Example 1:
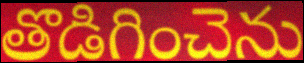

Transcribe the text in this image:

తొడిగించెను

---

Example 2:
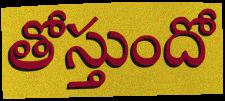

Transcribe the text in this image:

తోస్తుందో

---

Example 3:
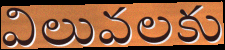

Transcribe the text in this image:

విలువలకు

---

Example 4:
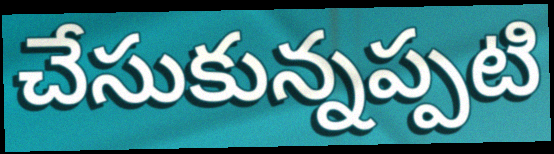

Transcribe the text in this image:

చేసుకున్నప్పటి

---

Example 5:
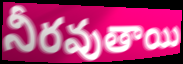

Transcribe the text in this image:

నీరవుతాయి